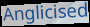
Anglicised